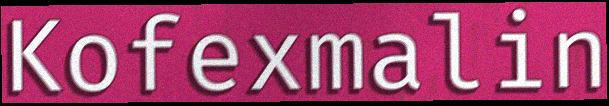
Kofexmalin